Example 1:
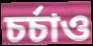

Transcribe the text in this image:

চৰ্চাও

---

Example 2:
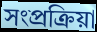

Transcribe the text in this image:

সংপ্ৰক্ৰিয়া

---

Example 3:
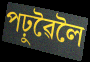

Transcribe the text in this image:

পঢ়ুৱৈলৈ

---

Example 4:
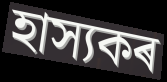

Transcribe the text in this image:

হাস্যকৰ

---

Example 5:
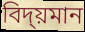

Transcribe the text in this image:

বিদ্য়মান